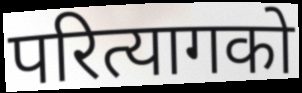
परित्यागको